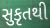
સુકૃતથી